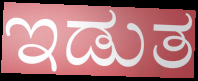
ಇಡುತ